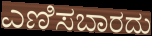
ಎಣಿಸಬಾರದು